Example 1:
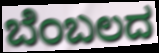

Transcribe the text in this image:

ಬೆಂಬಲದ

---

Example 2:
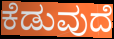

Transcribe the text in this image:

ಕೆಡುವುದೆ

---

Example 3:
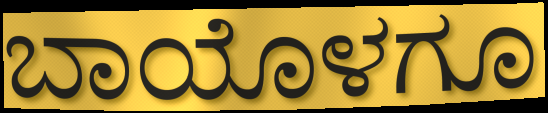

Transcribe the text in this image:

ಬಾಯೊಳಗೂ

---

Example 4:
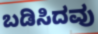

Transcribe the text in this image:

ಬಡಿಸಿದವು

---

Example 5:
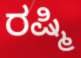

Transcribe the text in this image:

ರಷ್ಮಿ